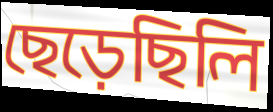
ছেড়েছিলি